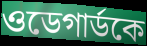
ওডেগার্ডকে